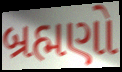
બ્રહ્મણો